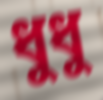
ধুধু